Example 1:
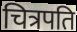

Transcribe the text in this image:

चित्रपति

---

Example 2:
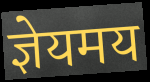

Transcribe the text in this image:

ज्ञेयमय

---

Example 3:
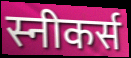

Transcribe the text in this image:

स्नीकर्स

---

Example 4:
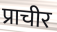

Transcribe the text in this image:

प्राचीर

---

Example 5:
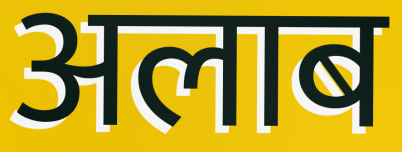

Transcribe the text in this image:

अलाब